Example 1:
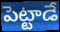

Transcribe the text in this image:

పెట్టాడే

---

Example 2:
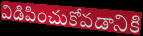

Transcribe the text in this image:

విడిపించుకోవడానికి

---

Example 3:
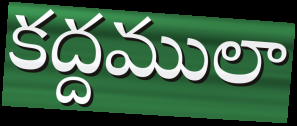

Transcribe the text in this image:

కద్దములా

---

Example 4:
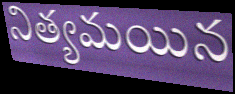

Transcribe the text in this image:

నిత్యమయిన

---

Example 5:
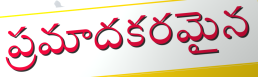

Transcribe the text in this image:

ప్రమాదకరమైన